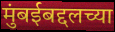
मुंबईबद्दलच्या